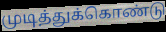
முடித்துக்கொண்டு